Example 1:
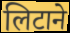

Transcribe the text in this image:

लिटाने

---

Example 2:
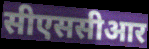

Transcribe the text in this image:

सीएससीआर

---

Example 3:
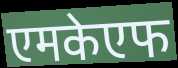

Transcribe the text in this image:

एमकेएफ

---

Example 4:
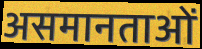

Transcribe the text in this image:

असमानताओं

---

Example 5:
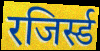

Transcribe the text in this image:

रजिर्स्ड